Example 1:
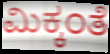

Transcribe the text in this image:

ಮಿಕ್ಕಂತೆ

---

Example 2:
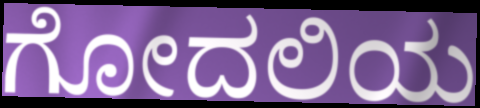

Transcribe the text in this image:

ಗೋದಲಿಯ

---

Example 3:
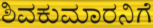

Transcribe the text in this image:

ಶಿವಕುಮಾರನಿಗೆ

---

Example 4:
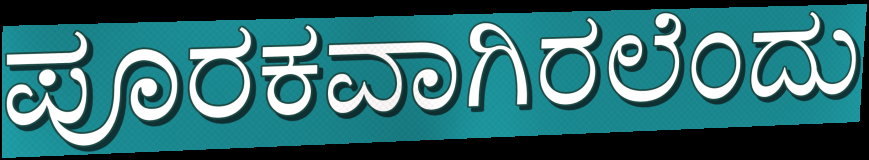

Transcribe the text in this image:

ಪೂರಕವಾಗಿರಲೆಂದು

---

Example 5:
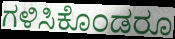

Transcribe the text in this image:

ಗಳಿಸಿಕೊಂಡರೂ